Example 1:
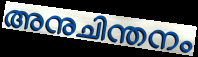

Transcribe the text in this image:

അനുചിന്തനം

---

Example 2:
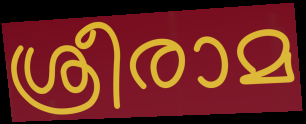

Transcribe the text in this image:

ശ്രീരാമ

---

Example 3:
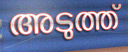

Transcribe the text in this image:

അടുത്ത്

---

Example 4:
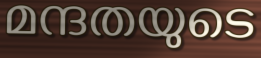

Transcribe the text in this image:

മന്ദതയുടെ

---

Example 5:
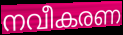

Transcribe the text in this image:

നവീകരണ